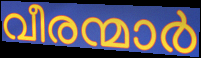
വീരന്മാർ